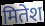
मितेश